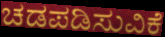
ಚಡಪಡಿಸುವಿಕೆ